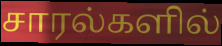
சாரல்களில்